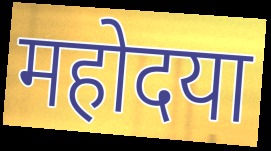
महोदया